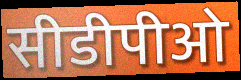
सीडीपीओ